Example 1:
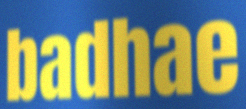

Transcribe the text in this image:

badhae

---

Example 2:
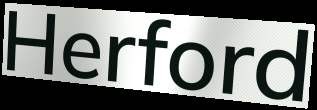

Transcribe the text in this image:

Herford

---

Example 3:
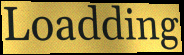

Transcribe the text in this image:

Loadding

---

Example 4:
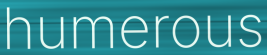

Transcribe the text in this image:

humerous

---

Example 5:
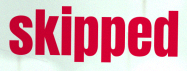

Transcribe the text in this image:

skipped